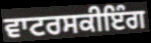
ਵਾਟਰਸਕੀਇੰਗ